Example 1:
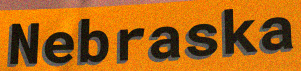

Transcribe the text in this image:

Nebraska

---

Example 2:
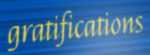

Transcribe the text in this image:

gratifications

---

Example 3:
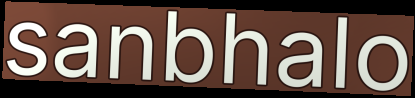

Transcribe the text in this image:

sanbhalo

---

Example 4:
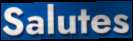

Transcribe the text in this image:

Salutes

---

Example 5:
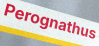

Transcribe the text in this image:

Perognathus